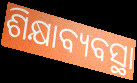
ଶିକ୍ଷାବ୍ୟବସ୍ଥା